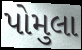
પોમુલા